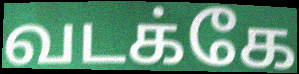
வடக்கே